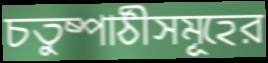
চতুষ্পাঠীসমূহের